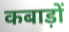
कबाड़ों